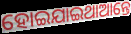
ହୋଇଯାଇଥାଆନ୍ତେ